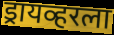
ड्रायव्हरला